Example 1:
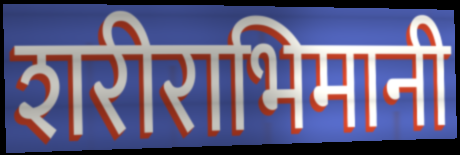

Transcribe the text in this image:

शरीराभिमानी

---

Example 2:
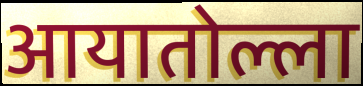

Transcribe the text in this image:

आयातोल्ला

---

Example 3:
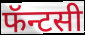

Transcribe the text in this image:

फॅन्टसी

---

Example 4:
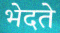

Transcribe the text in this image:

भेदते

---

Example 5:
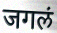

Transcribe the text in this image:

जगलं